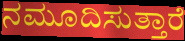
ನಮೂದಿಸುತ್ತಾರೆ